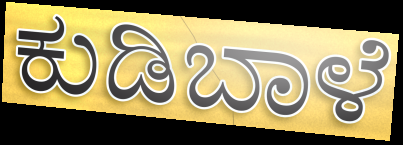
ಕುಡಿಬಾಳೆ